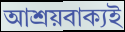
আশ্ৰয়বাক্যই